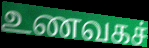
உணவகச்